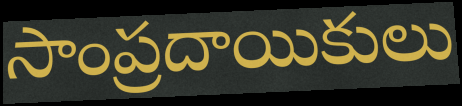
సాంప్రదాయికులు